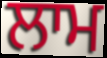
ਲਾਮ